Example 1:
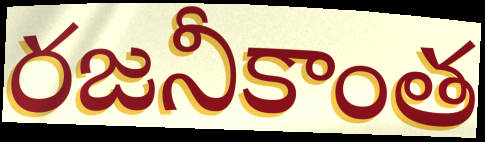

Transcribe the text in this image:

రజనీకాంత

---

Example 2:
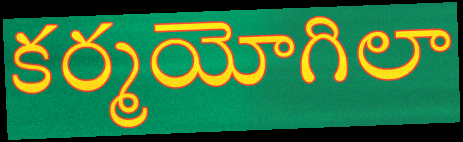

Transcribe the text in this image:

కర్మయోగిలా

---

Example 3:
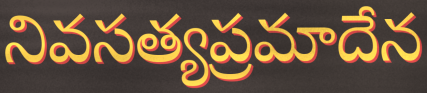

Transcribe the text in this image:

నివసత్యప్రమాదేన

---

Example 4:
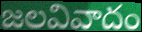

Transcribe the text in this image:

జలవివాదం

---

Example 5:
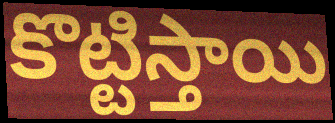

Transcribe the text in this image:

కొట్టిస్తాయి